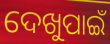
ଦେଖୁପାଇଁ